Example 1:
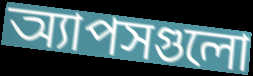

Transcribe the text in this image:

অ্যাপসগুলো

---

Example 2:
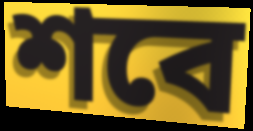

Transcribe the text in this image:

শবে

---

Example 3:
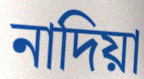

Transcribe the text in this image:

নাদিয়া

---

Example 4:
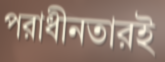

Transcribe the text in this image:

পরাধীনতারই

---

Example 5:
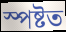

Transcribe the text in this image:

স্পষ্টত